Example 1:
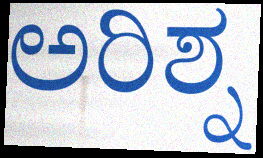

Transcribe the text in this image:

ಅರಿಶ್ನ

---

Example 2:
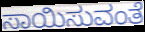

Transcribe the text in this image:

ಸಾಯಿಸುವಂತೆ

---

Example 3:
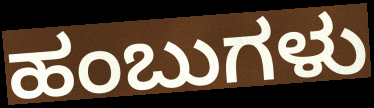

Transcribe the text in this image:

ಹಂಬುಗಳು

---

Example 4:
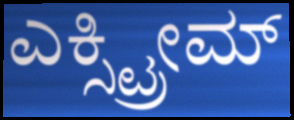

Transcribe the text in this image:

ಎಕ್ಸ್ಟ್ರೀಮ್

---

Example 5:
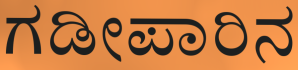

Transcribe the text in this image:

ಗಡೀಪಾರಿನ